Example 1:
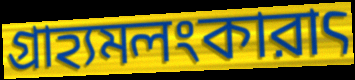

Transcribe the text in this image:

গ্রাহ্যমলংকারাৎ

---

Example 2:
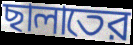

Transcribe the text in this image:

ছালাতের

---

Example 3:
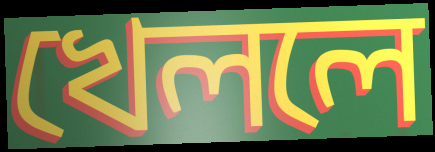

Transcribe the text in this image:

খেললে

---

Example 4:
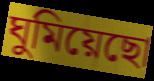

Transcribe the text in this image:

ঘুমিয়েছো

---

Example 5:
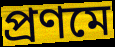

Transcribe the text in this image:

প্রণমে